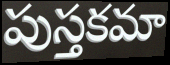
పుస్తకమా